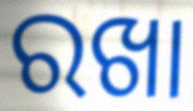
ରଖା